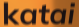
katai